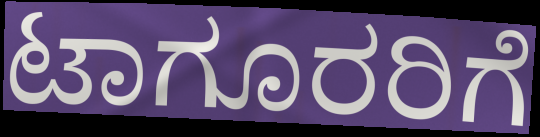
ಟಾಗೂರರಿಗೆ